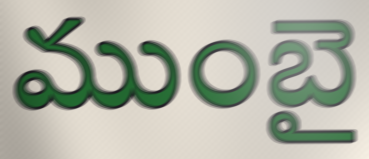
ముంబై